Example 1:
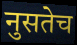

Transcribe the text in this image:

नुसतेच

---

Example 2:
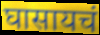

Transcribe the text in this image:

घासायचं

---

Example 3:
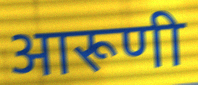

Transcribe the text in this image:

आरूणी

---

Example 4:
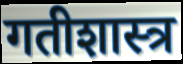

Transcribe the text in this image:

गतीशास्त्र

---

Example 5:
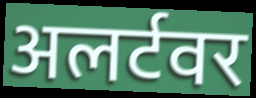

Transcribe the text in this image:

अलर्टवर